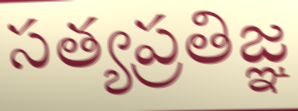
సత్యప్రతిజ్ఞ